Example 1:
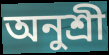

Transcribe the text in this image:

অনুশ্ৰী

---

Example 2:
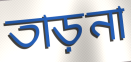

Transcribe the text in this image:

তাড়না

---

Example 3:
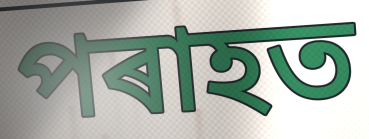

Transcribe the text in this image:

পৰাহত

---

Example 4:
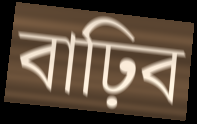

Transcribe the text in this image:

বাঢ়িব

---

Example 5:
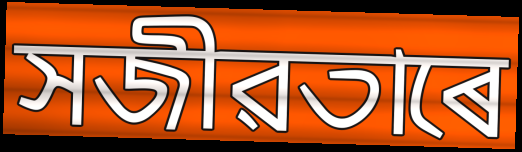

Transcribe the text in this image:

সজীৱতাৰে